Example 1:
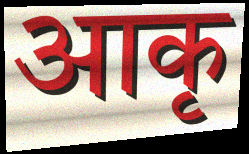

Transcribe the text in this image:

आकृ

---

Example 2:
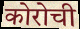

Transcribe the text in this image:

कोरोची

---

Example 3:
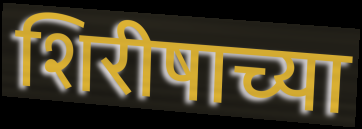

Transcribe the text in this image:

शिरीषाच्या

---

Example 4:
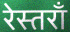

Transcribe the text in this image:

रेस्तराँ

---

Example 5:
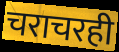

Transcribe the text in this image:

चराचरही